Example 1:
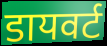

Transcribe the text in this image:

डायवर्ट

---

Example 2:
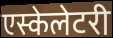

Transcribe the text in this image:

एस्केलेटरी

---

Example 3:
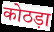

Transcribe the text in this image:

कोठड़ा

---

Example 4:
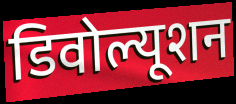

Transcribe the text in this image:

डिवोल्यूशन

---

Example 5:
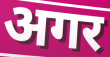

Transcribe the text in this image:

अगर